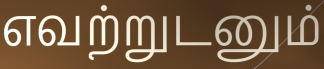
எவற்றுடனும்